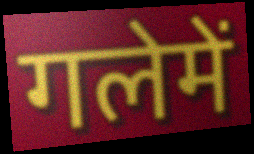
गलेमें